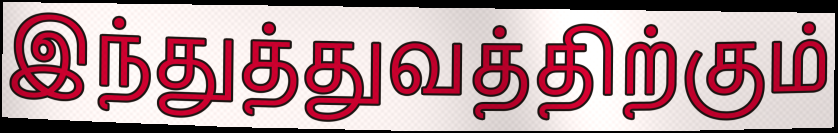
இந்துத்துவத்திற்கும்